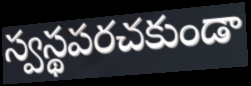
స్వస్థపరచకుండా